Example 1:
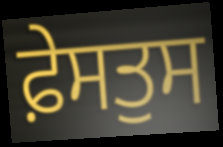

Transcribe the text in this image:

ਫ਼ੇਸਤੁਸ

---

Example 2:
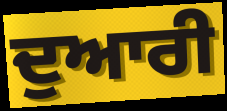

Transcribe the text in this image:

ਦੁਆਰੀ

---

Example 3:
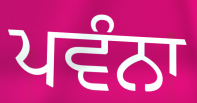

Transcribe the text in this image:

ਪਵੰਨਾ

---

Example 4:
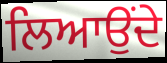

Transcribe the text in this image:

ਲਿਆਉਂਦੇ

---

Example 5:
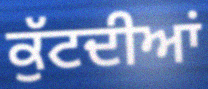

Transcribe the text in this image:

ਕੁੱਟਦੀਆਂ